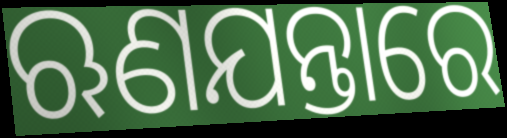
ଋଣଯନ୍ତାରେ